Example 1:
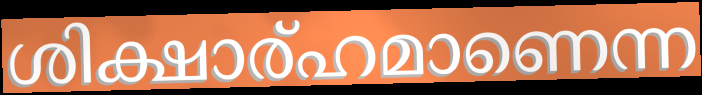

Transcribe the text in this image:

ശിക്ഷാര്ഹമാണെന്ന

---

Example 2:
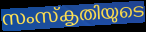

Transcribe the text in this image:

സംസ്‌കൃതിയുടെ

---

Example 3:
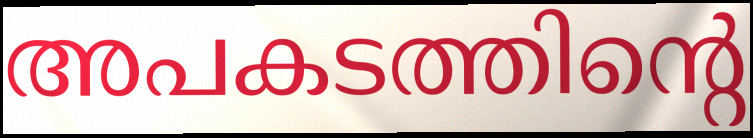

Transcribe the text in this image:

അപകടത്തിന്റെ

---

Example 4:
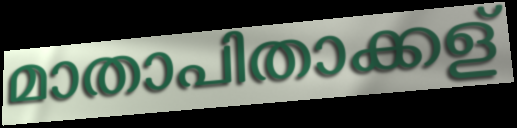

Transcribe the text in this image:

മാതാപിതാക്കള്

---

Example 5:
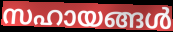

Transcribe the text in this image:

സഹായങ്ങൾ